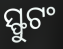
ସ୍ଫୁଟଂ